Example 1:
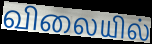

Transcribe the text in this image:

விலையில்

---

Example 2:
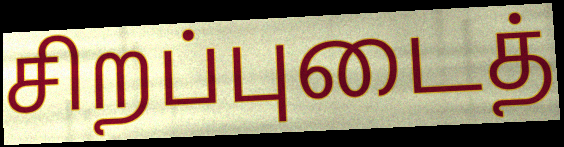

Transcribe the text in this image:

சிறப்புடைத்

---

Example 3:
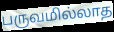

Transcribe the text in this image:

பருவமில்லாத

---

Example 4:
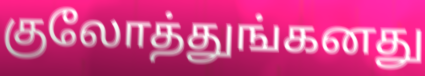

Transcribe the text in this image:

குலோத்துங்கனது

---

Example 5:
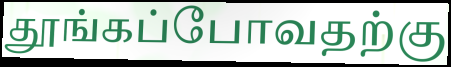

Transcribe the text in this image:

தூங்கப்போவதற்கு